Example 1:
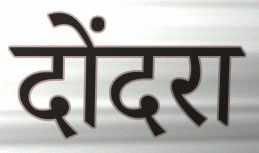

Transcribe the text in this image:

दोंदरा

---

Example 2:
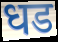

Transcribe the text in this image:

धड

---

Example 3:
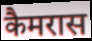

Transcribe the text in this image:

कैमरास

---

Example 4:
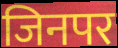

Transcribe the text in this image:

जिनपर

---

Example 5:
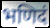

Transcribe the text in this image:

भणिदं